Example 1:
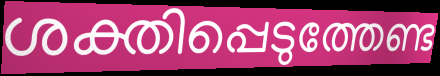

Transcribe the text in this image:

ശക്തിപ്പെടുത്തേണ്ട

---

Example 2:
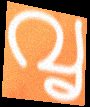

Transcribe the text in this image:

വൃ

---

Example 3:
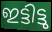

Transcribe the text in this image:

ഇട്ടിട്ടു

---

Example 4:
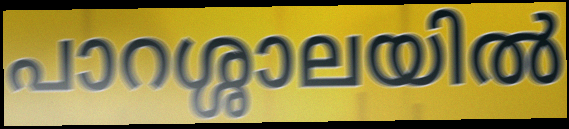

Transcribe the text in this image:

പാറശ്ശാലയിൽ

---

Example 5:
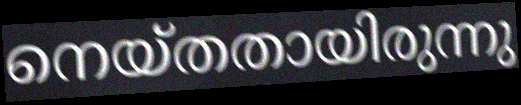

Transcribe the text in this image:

നെയ്തതായിരുന്നു